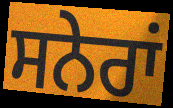
ਸਨੇਰਾਂ